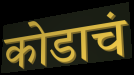
कोडाचं